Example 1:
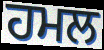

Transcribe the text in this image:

ਹਮਲ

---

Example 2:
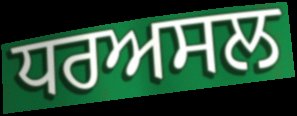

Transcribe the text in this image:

ਧਰਅਸਲ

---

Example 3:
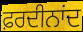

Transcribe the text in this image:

ਫ਼ਰਦੀਨਾਂਦ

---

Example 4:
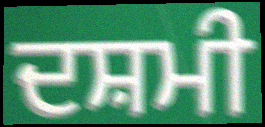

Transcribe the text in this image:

ਦਸ਼ਮੀ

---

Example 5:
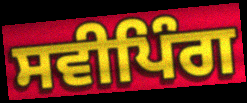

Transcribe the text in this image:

ਸਵੀਪਿੰਗ